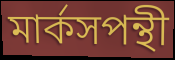
মার্কসপন্থী